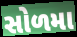
સોળમા